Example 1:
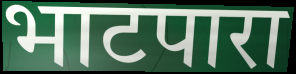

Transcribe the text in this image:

भाटपारा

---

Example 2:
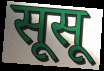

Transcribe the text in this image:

सूसू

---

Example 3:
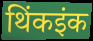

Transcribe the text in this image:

थिंकइंक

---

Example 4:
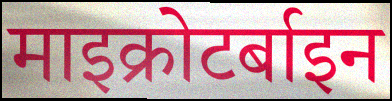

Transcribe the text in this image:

माइक्रोटर्बाइन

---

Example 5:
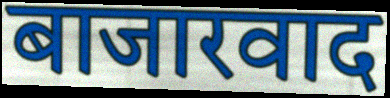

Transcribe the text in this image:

बाजारवाद